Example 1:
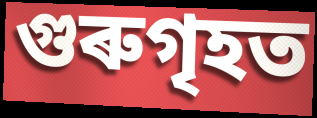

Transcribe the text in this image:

গুৰুগৃহত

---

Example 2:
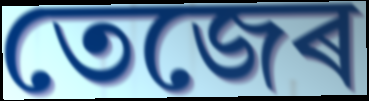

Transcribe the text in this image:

তেজেৰ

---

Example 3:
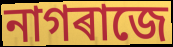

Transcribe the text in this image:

নাগৰাজে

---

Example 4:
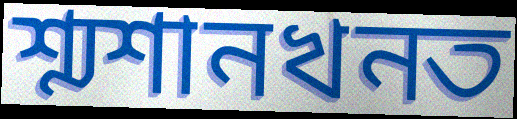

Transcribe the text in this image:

শ্মশানখনত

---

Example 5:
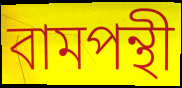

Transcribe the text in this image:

বামপন্থী